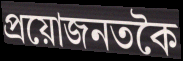
প্ৰয়োজনতকৈ